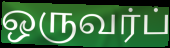
ஒருவர்ப்